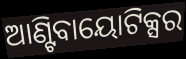
ଆଣ୍ଟିବାୟୋଟିକ୍ସର